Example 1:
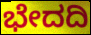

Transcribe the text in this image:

ಭೇದದಿ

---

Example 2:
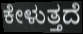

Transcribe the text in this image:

ಕೇಳುತ್ತದೆ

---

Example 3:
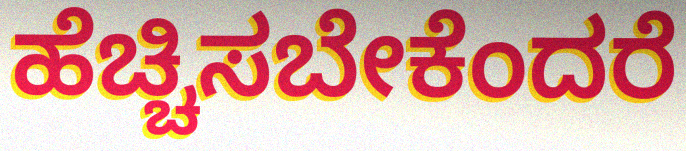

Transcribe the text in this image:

ಹೆಚ್ಚಿಸಬೇಕೆಂದರೆ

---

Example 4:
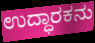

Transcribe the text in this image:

ಉದ್ಧಾರಕನು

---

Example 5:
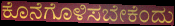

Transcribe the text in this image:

ಕೊನೆಗೊಳಿಸಬೇಕೆಂದು